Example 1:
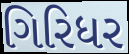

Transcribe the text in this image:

ગિરિધર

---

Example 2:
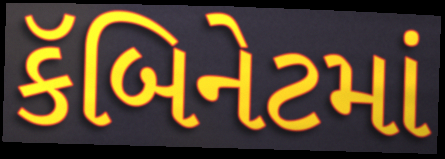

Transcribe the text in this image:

કૅબિનેટમાં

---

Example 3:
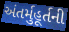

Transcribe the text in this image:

અંતર્મુહૂર્તની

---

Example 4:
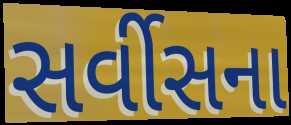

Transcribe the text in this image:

સર્વીસના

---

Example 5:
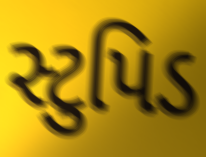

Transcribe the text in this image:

સ્ટુપિડ